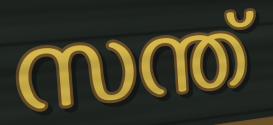
സന്ത്